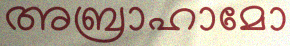
അബ്രാഹാമോ